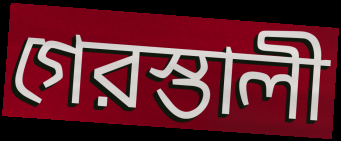
গেরস্তালী